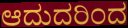
ಆದುದರಿಂದ